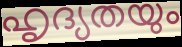
ഹൃദ്യതയും